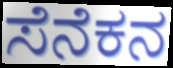
ಸೆನೆಕನ